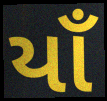
યાઁ